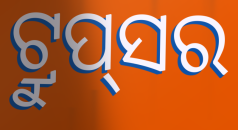
ଟ୍ରୁପ୍‌ସର